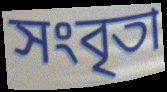
সংবৃতা